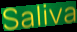
Saliva